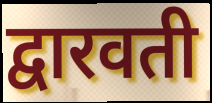
द्वारवती